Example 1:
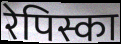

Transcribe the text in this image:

रेपिस्का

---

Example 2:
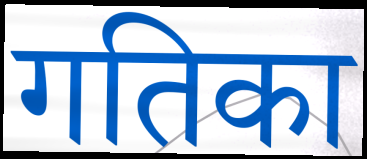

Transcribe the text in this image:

गतिका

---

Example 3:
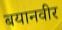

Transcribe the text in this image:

बयानवीर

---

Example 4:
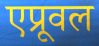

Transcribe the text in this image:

एप्रूवल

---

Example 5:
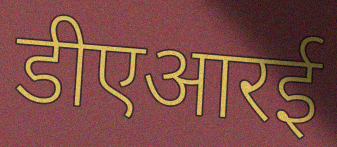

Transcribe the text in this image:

डीएआरई